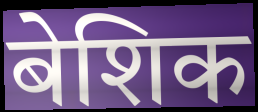
बेशिक